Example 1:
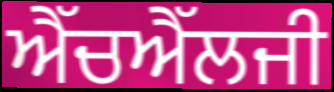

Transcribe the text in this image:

ਐੱਚਐੱਲਜੀ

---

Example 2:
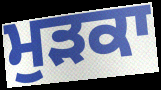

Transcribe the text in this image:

ਮੁੜਕਾ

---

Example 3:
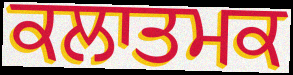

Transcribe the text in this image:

ਕਲਾਤਮਕ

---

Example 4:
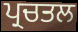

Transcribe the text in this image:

ਪ੍ਰਚਤਲ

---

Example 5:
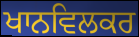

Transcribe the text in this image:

ਖਾਨਵਿਲਕਰ